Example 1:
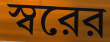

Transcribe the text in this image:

স্বরের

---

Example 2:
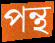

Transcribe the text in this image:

পন্থ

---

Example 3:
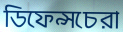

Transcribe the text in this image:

ডিফেন্সচেরা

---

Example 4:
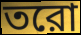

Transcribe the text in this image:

তরো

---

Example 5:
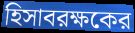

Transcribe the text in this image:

হিসাবরক্ষকের